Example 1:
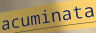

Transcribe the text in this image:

acuminata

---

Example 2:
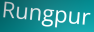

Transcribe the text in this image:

Rungpur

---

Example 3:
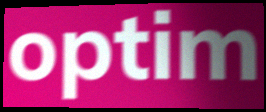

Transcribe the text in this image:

optim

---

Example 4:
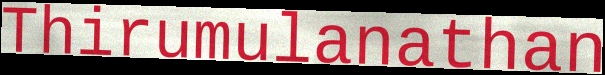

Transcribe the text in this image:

Thirumulanathan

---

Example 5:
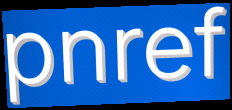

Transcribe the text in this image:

pnref